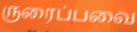
ருரைப்பவை